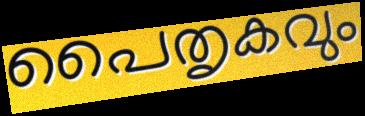
പൈതൃകവും